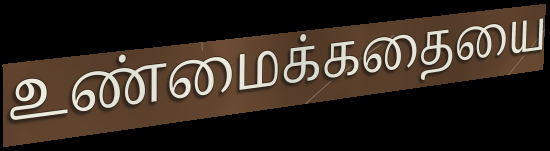
உண்மைக்கதையை